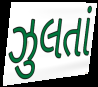
ઝુલતાં